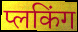
प्लकिंग